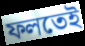
ফলতেই